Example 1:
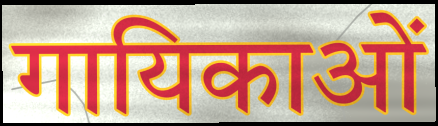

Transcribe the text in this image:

गायिकाओं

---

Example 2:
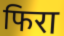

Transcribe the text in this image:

फिरा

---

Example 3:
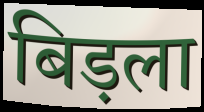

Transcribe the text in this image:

बिड़ला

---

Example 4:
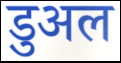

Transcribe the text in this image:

डुअल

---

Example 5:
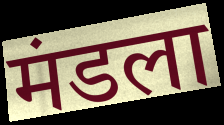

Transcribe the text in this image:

मंडला